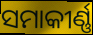
ସମାକୀର୍ଣ୍ଣ